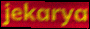
jekarya